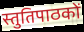
स्तुतिपाठकों